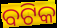
ବଟିକ